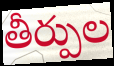
తీర్పుల